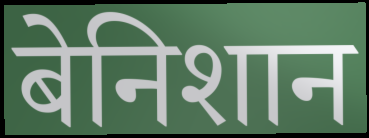
बेनिशान